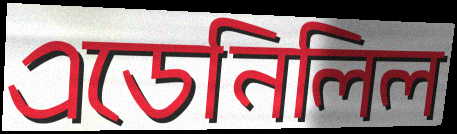
এডেনিলিল